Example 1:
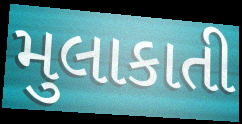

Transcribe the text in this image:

મુલાકાતી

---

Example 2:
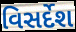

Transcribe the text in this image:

વિસર્દેશ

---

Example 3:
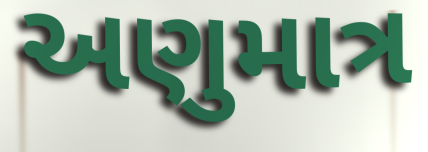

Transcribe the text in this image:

અણુમાત્ર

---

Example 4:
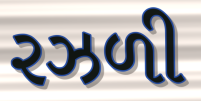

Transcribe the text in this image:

રઝળી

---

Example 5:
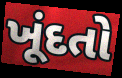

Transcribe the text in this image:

ખૂંદતો